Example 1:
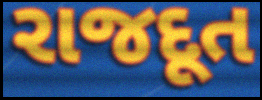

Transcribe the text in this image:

રાજદૂત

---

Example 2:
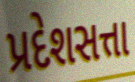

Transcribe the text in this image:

પ્રદેશસત્તા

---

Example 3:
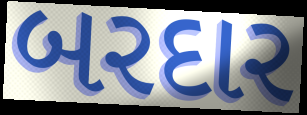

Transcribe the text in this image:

બરદાર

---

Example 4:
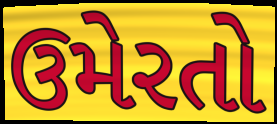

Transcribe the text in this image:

ઉમેરતો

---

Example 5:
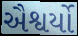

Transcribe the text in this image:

ઐશ્વર્યો